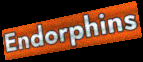
Endorphins